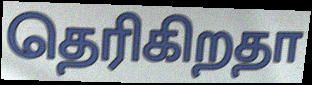
தெரிகிறதா